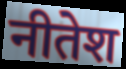
नीतेश